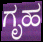
ಗೃಹ